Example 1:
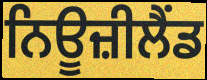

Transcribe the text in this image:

ਨਿਊਜ਼ੀਲੈੰਡ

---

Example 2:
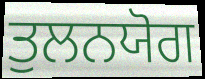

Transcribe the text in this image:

ਤੁਲਨਯੋਗ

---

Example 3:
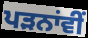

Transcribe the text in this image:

ਪੜਨਾਂਵੀਂ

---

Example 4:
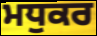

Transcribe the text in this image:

ਮਧੁਕਰ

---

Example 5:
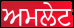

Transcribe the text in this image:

ਅਮਲੇਟ